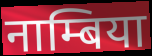
नाम्बिया